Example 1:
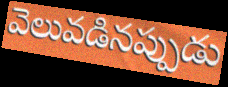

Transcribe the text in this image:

వెలువడినప్పుడు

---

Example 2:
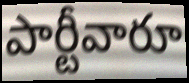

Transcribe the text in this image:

పార్టీవారూ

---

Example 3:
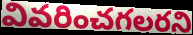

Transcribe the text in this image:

వివరించగలరని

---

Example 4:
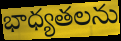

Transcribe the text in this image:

భాధ్యతలను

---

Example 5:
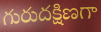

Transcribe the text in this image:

గురుదక్షిణగా